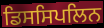
ਡਿਸਸਿਪਲਿਨ